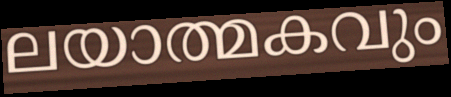
ലയാത്മകവും